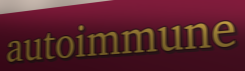
autoimmune